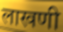
लाखणी